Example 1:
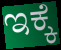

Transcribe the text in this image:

ಇಕ್ಕೆ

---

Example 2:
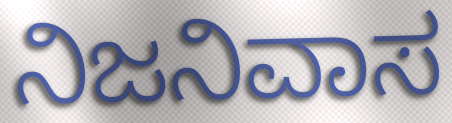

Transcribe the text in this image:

ನಿಜನಿವಾಸ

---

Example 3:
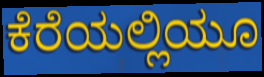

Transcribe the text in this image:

ಕೆರೆಯಲ್ಲಿಯೂ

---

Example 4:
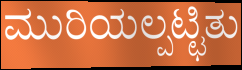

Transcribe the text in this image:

ಮುರಿಯಲ್ಪಟ್ಟಿತು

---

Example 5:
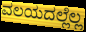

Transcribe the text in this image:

ವಲಯದಲ್ಲೆಲ್ಲ